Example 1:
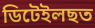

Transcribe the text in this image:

ডিটেইলছত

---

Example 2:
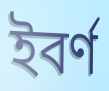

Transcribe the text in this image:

ইবৰ্ণ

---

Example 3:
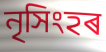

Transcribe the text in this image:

নৃসিংহৰ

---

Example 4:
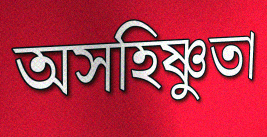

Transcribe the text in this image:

অসহিষ্ণুতা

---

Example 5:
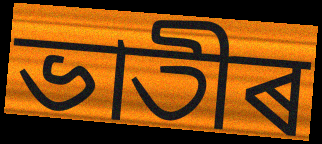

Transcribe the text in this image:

ভাতীৰ